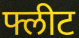
फ्लीट